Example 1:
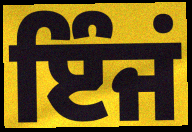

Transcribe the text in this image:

ਇੰਜਂ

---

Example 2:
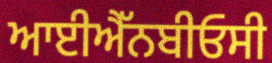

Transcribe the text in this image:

ਆਈਐੱਨਬੀਓਸੀ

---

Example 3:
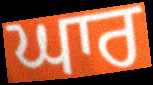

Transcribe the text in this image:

ਘਾਰ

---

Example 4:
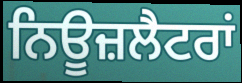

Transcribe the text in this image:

ਨਿਊਜ਼ਲੈਟਰਾਂ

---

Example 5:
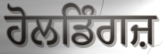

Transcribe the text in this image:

ਹੋਲਡਿੰਗਜ਼